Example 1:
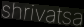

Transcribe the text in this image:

shrivatsa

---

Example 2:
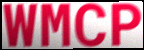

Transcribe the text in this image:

WMCP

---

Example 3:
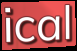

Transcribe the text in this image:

ical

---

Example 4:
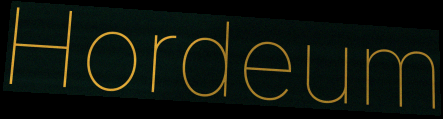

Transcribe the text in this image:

Hordeum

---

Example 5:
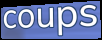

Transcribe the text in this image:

coups